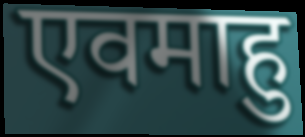
एवमाहु